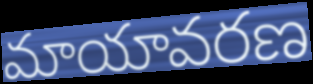
మాయావరణ